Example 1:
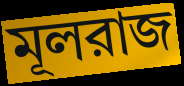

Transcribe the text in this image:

মূলরাজ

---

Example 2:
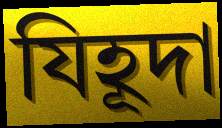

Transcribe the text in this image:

যিহূদা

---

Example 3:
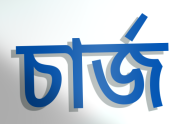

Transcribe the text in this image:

চার্জ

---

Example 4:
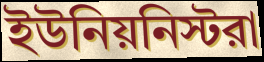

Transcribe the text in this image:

ইউনিয়নিস্টরা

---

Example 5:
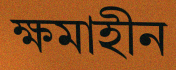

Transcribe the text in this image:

ক্ষমাহীন